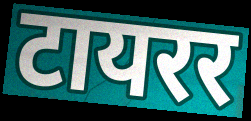
टायरर